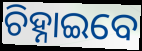
ଚିହ୍ନାଇବେ